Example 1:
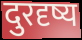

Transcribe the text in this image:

दुरदृष्य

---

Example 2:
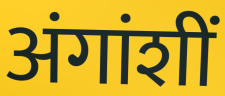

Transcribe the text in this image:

अंगांशीं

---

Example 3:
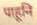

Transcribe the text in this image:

पाहूनि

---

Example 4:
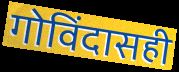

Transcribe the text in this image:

गोविंदासही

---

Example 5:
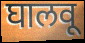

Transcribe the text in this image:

घालवू